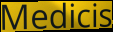
Medicis